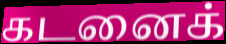
கடனைக்